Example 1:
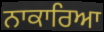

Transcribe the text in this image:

ਨਾਕਾਰਿਆ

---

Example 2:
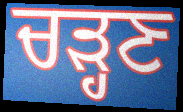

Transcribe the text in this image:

ਚੜ੍ਹਣ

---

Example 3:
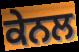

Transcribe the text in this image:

ਕੇਨਲ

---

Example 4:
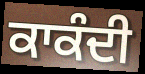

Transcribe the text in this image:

ਕਾਕੰਦੀ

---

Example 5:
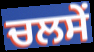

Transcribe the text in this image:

ਚਲਸੇਂ